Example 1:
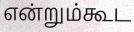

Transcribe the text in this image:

என்றும்கூட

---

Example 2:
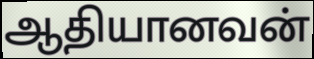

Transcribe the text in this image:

ஆதியானவன்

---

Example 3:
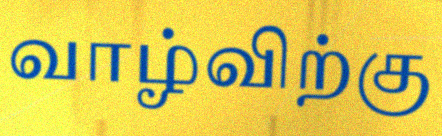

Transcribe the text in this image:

வாழ்விற்கு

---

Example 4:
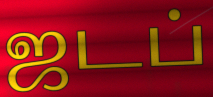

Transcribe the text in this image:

ஜடப்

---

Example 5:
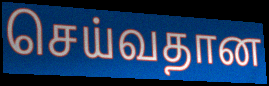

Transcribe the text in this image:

செய்வதான